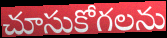
చూసుకోగలను